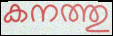
കനത്തു